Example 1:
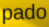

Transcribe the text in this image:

pado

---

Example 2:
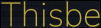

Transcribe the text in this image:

Thisbe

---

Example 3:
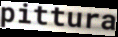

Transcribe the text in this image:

pittura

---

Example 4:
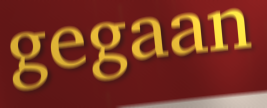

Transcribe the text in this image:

gegaan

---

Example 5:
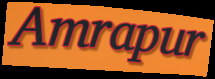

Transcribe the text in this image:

Amrapur